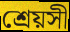
শ্রেয়সী